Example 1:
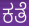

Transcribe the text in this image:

ಕತೆ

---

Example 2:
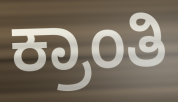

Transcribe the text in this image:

ಕ್ರಾಂತಿ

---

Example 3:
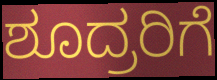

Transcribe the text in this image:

ಶೂದ್ರರಿಗೆ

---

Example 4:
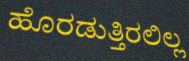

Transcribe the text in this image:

ಹೊರಡುತ್ತಿರಲಿಲ್ಲ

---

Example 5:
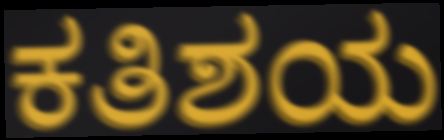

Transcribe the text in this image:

ಕತಿಶಯ